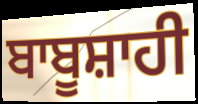
ਬਾਬੂਸ਼ਾਹੀ